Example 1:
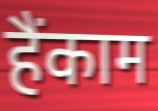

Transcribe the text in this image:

हैंकाम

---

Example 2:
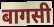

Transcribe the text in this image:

बागसी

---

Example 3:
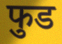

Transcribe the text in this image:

फुड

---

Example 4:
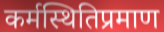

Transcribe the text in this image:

कर्मस्थितिप्रमाण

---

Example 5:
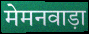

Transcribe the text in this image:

मेमनवाड़ा